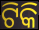
ଟିକି